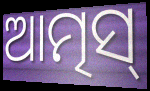
ଆତ୍ମସ୍